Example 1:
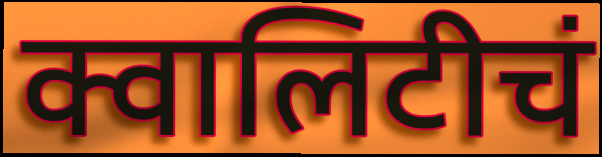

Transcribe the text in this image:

क्वालिटीचं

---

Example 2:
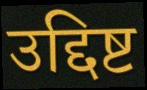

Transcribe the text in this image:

उद्दिष्ट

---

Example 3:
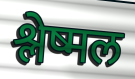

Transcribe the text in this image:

श्लेष्मल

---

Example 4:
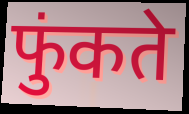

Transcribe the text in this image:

फुंकते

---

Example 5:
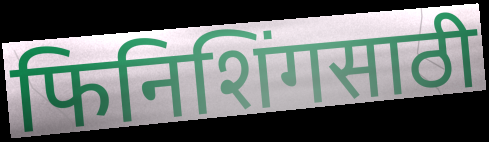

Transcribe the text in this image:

फिनिशिंगसाठी